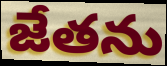
జేతను